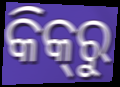
କିକ୍‍ରୁ